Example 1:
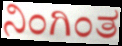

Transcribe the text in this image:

ನಿಂಗಿಂತ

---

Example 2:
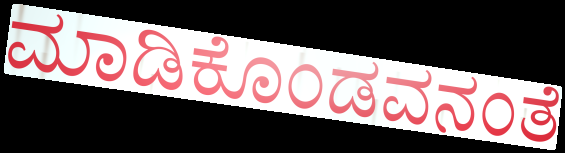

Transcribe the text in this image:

ಮಾಡಿಕೊಂಡವನಂತೆ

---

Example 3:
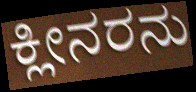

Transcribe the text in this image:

ಕ್ಲೀನರನು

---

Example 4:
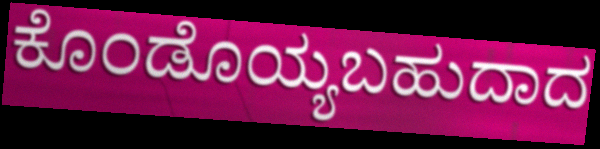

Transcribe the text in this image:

ಕೊಂಡೊಯ್ಯಬಹುದಾದ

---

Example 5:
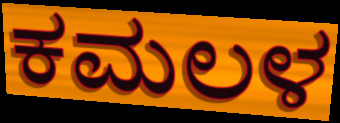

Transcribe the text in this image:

ಕಮಲಳ